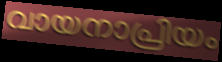
വായനാപ്രിയം